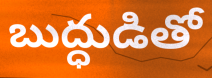
బుద్ధుడితో